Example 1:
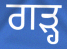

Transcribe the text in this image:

ਗੜ੍ਹ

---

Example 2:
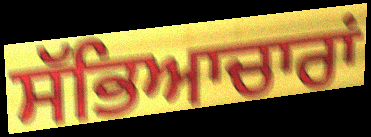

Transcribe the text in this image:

ਸੱਭਿਆਚਾਰਾਂ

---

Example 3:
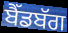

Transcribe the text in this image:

ਬੈੱਡਬੱਗ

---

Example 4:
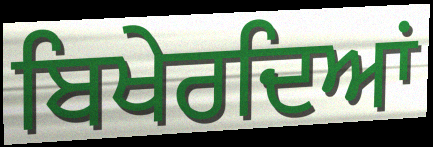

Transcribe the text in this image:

ਬਿਖੇਰਦਿਆਂ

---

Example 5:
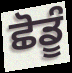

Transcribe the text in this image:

ਛੋਡੂੰ